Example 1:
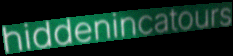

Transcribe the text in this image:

hiddenincatours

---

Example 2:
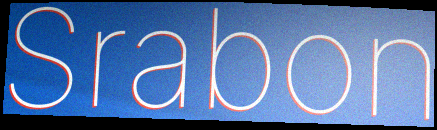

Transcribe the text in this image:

Srabon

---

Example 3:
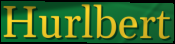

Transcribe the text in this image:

Hurlbert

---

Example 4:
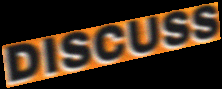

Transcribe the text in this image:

DISCUSS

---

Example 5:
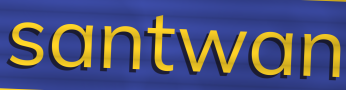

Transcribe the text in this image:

santwan